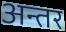
अन्‍तर